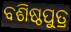
ବଶିଷ୍ଠପୁତ୍ର